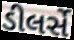
ડીલર્સે